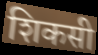
शिकसी